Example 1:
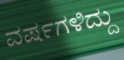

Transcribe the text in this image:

ವರ್ಷಗಳಿದ್ದು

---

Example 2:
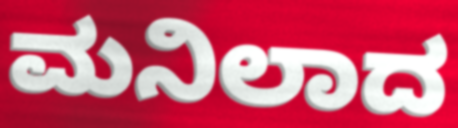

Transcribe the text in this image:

ಮನಿಲಾದ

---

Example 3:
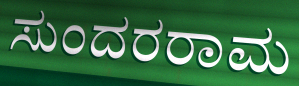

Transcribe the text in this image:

ಸುಂದರರಾಮ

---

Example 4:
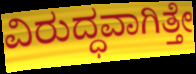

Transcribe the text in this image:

ವಿರುದ್ಧವಾಗಿತ್ತೇ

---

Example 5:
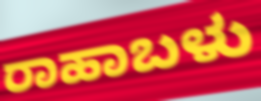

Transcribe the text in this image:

ರಾಹಾಬಳು